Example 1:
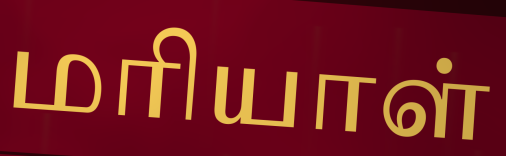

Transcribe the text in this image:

மரியாள்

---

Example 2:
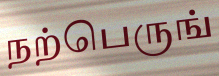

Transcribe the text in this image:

நற்பெருங்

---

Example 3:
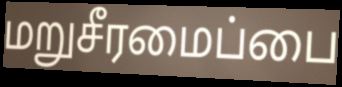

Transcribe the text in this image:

மறுசீரமைப்பை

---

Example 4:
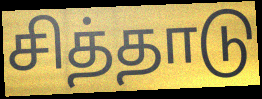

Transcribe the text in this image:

சித்தாடு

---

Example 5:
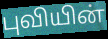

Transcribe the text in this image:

புவியின்